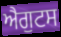
ਐਗੁਟਸ